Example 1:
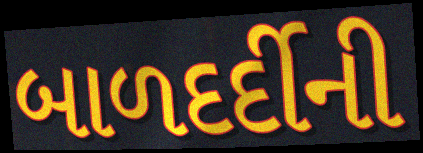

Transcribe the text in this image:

બાળદર્દીની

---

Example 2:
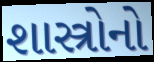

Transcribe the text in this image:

શાસ્ત્રોનો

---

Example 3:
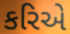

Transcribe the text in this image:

કરિએ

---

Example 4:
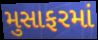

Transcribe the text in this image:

મુસાફરમાં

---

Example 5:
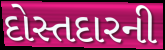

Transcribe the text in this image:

દોસ્તદારની